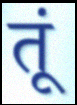
तूं